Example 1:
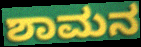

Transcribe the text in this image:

ಶಾಮನ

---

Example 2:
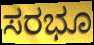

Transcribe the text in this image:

ಸರಭೂ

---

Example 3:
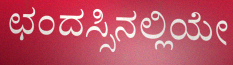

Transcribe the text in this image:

ಛಂದಸ್ಸಿನಲ್ಲಿಯೇ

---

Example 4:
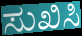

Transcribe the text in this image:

ಸುಖಿಸಿ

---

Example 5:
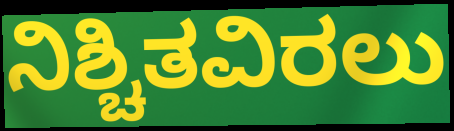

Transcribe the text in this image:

ನಿಶ್ಚಿತವಿರಲು